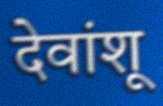
देवांशू